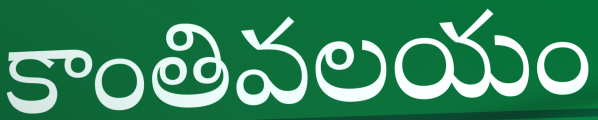
కాంతివలయం